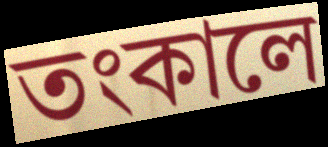
তংকালে